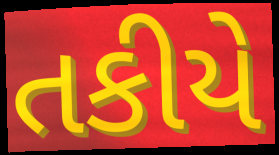
તકીયે